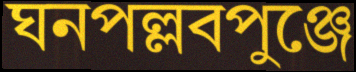
ঘনপল্লবপুঞ্জে